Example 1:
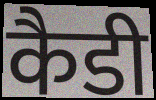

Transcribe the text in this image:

कैडी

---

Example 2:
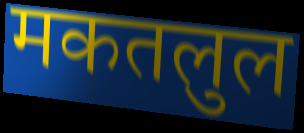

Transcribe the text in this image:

मकतलुल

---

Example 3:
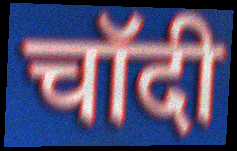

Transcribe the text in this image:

चॉदी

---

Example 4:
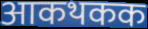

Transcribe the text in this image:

आकथकक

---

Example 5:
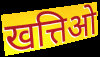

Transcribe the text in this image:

खत्तिओ